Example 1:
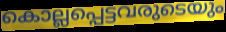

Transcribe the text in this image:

കൊല്ലപ്പെട്ടവരുടെയും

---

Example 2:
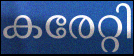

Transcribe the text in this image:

കരേറ്റി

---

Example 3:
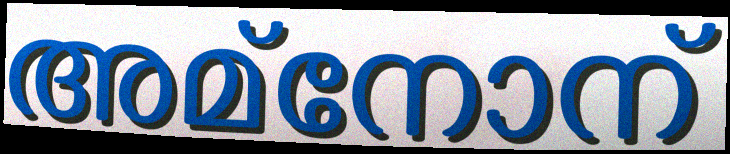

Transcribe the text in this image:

അമ്നോന്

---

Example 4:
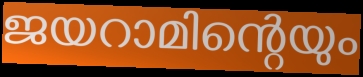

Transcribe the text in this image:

ജയറാമിന്റെയും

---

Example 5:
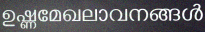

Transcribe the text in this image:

ഉഷ്ണമേഖലാവനങ്ങൾ